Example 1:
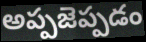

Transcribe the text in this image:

అప్పజెప్పడం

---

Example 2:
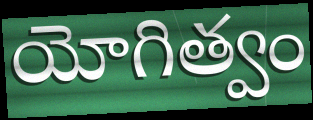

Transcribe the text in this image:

యోగిత్వం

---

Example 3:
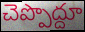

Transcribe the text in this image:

చెప్పొద్దూ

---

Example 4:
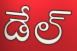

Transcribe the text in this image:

డేల్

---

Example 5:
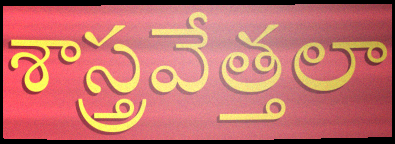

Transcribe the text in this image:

శాస్త్రవేత్తలా